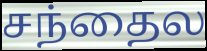
சந்தைல